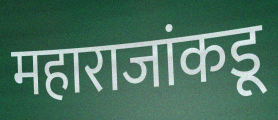
महाराजांकडू